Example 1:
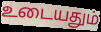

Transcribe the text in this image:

உடையதும்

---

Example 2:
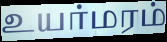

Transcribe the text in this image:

உயர்மரம்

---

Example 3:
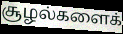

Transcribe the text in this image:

சூழல்களைக்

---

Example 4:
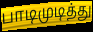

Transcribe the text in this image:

பாடிமுடித்து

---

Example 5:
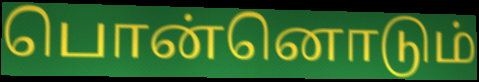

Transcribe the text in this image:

பொன்னொடும்